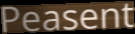
Peasent